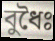
বুধৈঃ